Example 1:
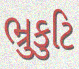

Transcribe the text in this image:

ભ્રુકુટિ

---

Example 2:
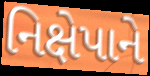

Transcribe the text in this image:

નિક્ષેપાને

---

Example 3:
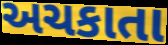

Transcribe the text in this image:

અચકાતા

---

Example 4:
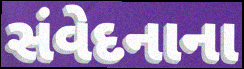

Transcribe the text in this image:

સંવેદનાના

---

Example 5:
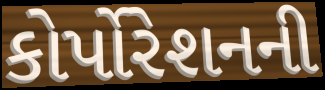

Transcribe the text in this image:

કોર્પોરેશનની